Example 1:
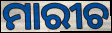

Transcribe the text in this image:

ମାରୀଚ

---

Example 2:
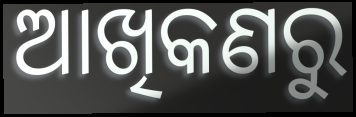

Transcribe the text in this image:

ଆଖିକଣରୁ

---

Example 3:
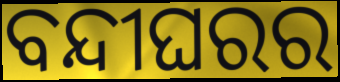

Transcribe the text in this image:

ବନ୍ଦୀଘରର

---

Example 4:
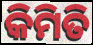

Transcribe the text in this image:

କିମିତି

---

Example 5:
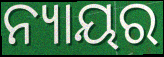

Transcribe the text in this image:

ନ୍ୟାୟର